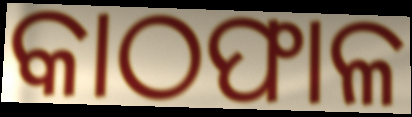
କାଠଫାଳ